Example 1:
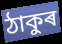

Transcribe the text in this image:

ঠাকুৰ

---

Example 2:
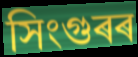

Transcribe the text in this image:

সিংগুৰৰ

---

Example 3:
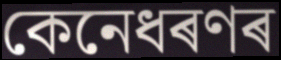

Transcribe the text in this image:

কেনেধৰণৰ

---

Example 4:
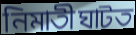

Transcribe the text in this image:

নিমাতীঘাটত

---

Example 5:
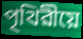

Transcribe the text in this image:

পৃথিৱীয়ে